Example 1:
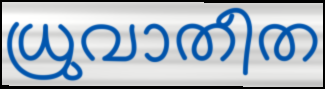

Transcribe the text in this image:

ധ്രുവാതീത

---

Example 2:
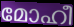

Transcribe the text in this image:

മോഹീ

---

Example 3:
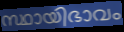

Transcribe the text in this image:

സ്ഥായിഭാവം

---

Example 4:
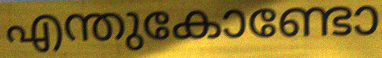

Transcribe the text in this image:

എന്തുകോണ്ടോ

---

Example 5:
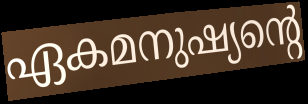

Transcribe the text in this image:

ഏകമനുഷ്യന്റെ